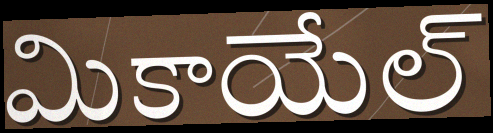
మికాయేల్